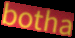
botha